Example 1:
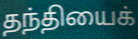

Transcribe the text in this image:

தந்தியைக்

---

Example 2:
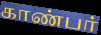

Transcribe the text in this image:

காண்பர்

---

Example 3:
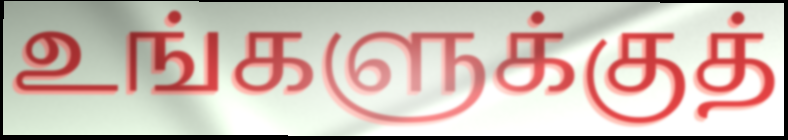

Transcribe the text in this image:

உங்களுக்குத்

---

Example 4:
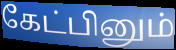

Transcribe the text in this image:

கேட்பினும்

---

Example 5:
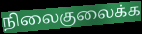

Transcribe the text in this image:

நிலைகுலைக்க